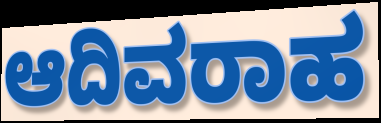
ಆದಿವರಾಹ